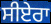
ਸੀਏਰਾ